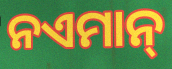
ନଏମାନ୍